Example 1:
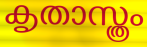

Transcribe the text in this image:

കൃതാസ്ത്രം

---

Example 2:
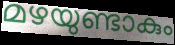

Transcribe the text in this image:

മഴയുണ്ടാകും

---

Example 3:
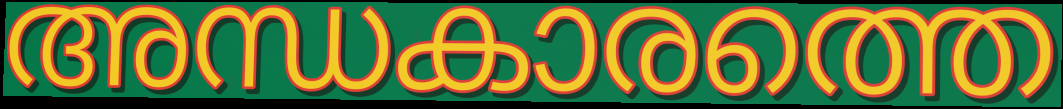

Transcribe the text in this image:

അന്ധകാരത്തെ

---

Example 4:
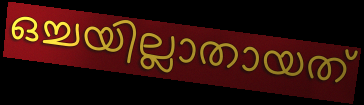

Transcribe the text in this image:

ഒച്ചയില്ലാതായത്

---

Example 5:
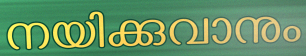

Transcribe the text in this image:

നയിക്കുവാനും